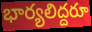
భార్యలిద్దరూ